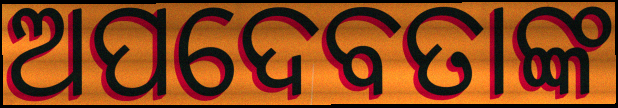
ଅପଦେବତାଙ୍କ